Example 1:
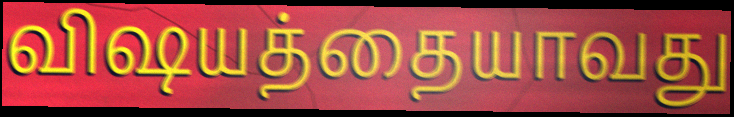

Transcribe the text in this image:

விஷயத்தையாவது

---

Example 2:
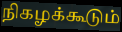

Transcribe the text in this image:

நிகழக்கூடும்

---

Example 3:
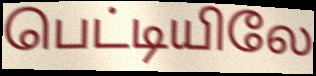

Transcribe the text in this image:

பெட்டியிலே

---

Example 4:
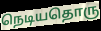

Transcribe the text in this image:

நெடியதொரு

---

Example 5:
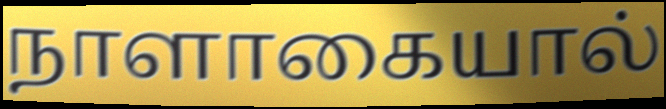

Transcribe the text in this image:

நாளாகையால்